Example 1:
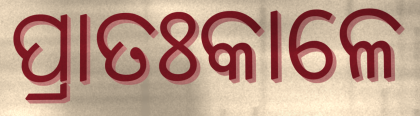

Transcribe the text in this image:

ପ୍ରାତଃକାଳେ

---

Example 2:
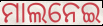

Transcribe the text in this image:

ମାଲନେଇ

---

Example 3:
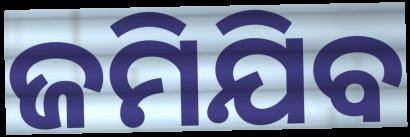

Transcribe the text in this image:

ଜମିଯିବ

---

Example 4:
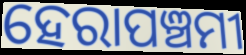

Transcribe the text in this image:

ହେରାପଞ୍ଚମୀ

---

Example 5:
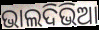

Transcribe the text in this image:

ଭାଲଦିଭିଆ